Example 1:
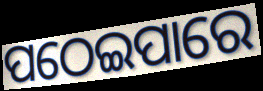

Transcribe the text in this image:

ପଠେଇପାରେ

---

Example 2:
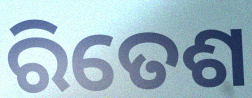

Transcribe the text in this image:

ରିତେଶ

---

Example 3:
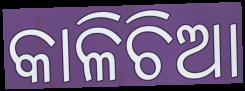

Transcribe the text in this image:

କାଳିଚିଆ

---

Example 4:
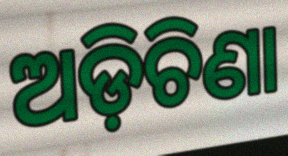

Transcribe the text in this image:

ଅଡ଼ିଚିଣା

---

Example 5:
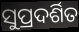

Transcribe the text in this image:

ସୁପ୍ରଦର୍ଶିତ